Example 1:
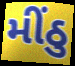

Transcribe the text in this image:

મીંઠુ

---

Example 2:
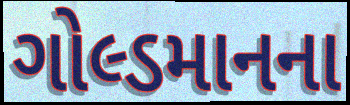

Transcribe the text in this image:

ગોલ્ડમાનના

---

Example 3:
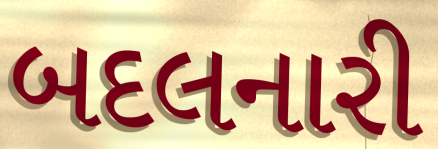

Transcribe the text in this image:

બદલનારી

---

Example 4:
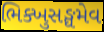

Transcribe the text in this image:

ભિક્ખુસઙ્ઘમેવ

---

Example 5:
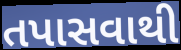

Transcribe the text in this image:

તપાસવાથી